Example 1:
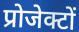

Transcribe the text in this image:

प्रोजेक्टों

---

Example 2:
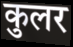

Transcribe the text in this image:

कुलर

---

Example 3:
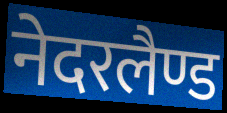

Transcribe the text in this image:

नेदरलैण्ड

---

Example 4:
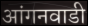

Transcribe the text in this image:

आंगनवाडी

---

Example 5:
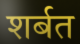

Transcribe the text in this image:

शर्बत